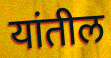
यांतील